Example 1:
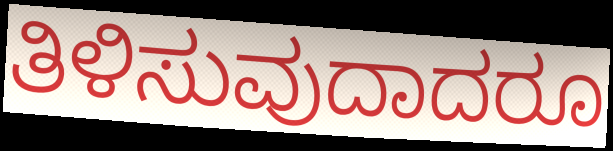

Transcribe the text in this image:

ತಿಳಿಸುವುದಾದರೂ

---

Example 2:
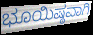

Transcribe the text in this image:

ಭೂಯಿಷ್ಠವಾಗಿ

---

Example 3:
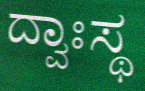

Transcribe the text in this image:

ದ್ವಾಃಸ್ಥ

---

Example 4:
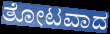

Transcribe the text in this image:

ತೋಟವಾದ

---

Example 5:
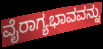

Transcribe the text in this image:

ವೈರಾಗ್ಯಭಾವವನ್ನು